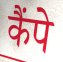
कैंपे